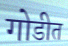
गोडीत